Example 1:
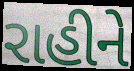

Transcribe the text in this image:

રાહીને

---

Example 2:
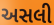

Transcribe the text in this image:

અસલી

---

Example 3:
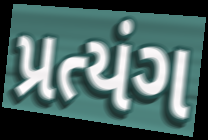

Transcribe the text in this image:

પ્રત્યંગ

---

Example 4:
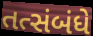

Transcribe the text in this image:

તત્સંબંધે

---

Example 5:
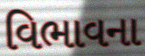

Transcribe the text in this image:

વિભાવના